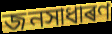
জনসাধাৰণ